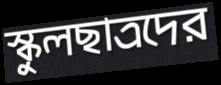
স্কুলছাত্রদের